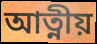
আত্নীয়